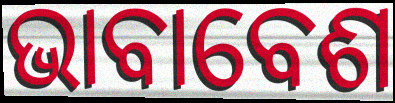
ଭାବାବେଶ